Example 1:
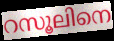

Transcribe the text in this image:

റസൂലിനെ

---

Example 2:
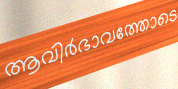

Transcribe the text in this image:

ആവിർഭാവത്തോടെ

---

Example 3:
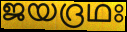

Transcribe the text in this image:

ജയദ്രഥഃ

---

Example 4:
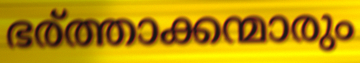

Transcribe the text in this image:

ഭര്ത്താക്കന്മാരും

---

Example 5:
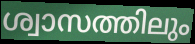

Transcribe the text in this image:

ശ്വാസത്തിലും